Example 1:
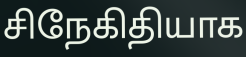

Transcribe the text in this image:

சிநேகிதியாக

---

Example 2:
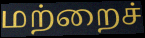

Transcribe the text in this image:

மற்றைச்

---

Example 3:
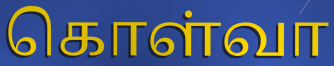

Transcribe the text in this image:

கொள்வா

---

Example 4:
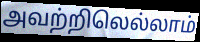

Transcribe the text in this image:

அவற்றிலெல்லாம்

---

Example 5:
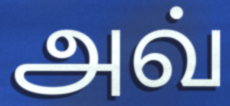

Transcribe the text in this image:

அவ்